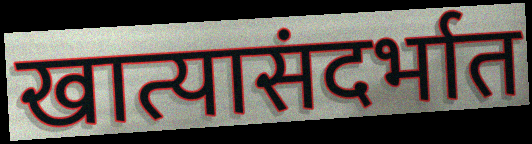
खात्यासंदर्भात